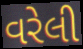
વરેલી